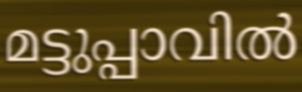
മട്ടുപ്പാവിൽ